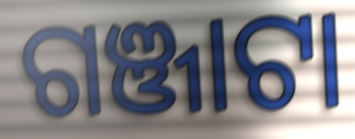
ଗଞ୍ଜାଟା